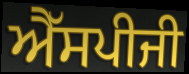
ਐੱਸਪੀਜੀ